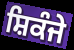
ਸ਼ਿਕੰਜੇ